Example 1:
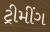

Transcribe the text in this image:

ટ્રીમીંગ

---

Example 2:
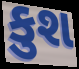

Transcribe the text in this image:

કુશ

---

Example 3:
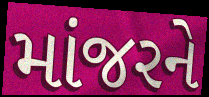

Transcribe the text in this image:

માંજરને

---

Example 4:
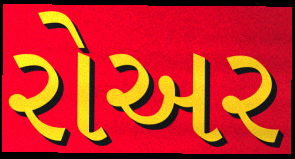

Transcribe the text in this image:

રોઅર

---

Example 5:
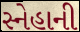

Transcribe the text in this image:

સ્નેહાની